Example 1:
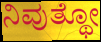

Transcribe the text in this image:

ನಿವುತ್ಥೋ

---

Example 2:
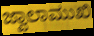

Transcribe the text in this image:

ಜ್ವಾಲಾಮುಖಿ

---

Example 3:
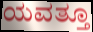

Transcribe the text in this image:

ಯವತ್ತೂ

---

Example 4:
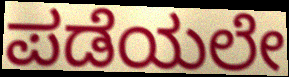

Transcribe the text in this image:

ಪಡೆಯಲೇ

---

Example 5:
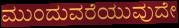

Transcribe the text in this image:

ಮುಂದುವರೆಯುವುದೇ